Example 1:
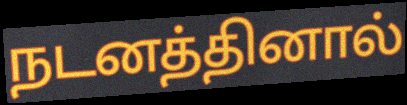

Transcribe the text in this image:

நடனத்தினால்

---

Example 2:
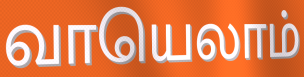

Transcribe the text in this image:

வாயெலாம்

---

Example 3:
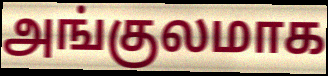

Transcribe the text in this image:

அங்குலமாக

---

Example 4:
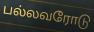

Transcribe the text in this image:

பல்லவரோடு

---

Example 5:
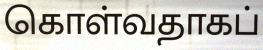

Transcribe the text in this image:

கொள்வதாகப்